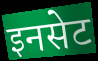
इनसेट